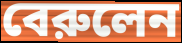
বেরুলেন